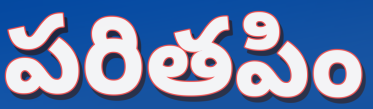
పరితపిం